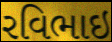
રવિભાઇ